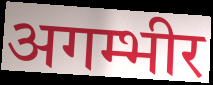
अगम्भीर